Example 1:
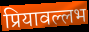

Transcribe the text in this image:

प्रियावल्लभ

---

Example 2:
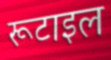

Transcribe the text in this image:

रूटाइल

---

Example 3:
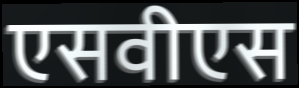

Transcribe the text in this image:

एसवीएस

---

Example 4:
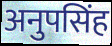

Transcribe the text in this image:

अनुपसिंह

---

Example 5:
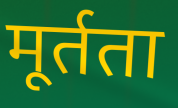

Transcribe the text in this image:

मूर्तता